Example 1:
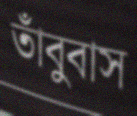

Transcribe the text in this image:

তাঁবুবাস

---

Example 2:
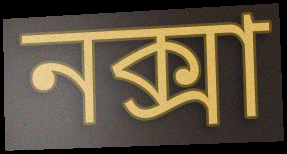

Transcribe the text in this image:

নক্সা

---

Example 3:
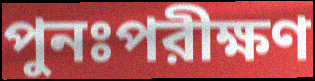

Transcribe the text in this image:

পুনঃপরীক্ষণ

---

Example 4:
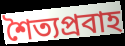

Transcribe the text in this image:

শৈত্যপ্রবাহ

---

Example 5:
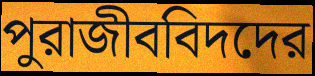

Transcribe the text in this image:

পুরাজীববিদদের